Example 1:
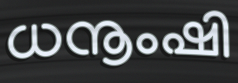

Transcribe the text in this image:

ധനൂംഷി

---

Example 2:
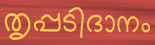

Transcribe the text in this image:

തൃപ്പടിദാനം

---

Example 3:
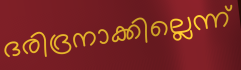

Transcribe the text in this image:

ദരിദ്രനാക്കില്ലെന്ന്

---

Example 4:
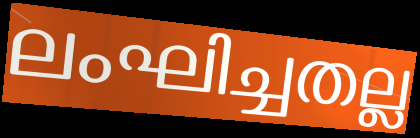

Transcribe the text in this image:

ലംഘിച്ചതല്ല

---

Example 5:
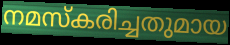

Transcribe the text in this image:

നമസ്കരിച്ചതുമായ